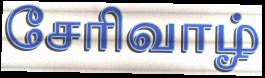
சேரிவாழ்